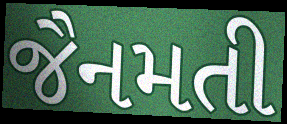
જૈનમતી